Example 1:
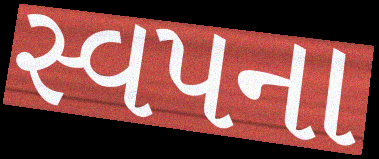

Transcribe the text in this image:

સ્વપના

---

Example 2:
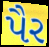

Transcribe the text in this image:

પૈર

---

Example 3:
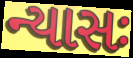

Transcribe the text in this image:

ન્યાસઃ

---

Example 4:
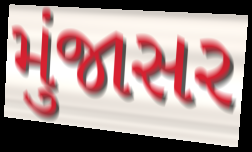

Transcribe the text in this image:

મુંજાસર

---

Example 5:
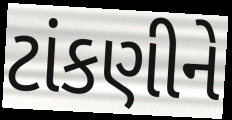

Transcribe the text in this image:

ટાંકણીને